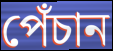
পেঁচান